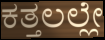
ಕತ್ತಲಲ್ಲೇ